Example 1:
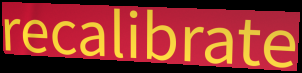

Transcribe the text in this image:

recalibrate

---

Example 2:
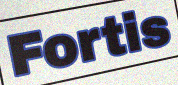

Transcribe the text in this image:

Fortis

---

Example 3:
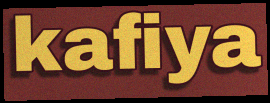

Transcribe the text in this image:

kafiya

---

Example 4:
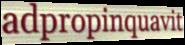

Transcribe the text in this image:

adpropinquavit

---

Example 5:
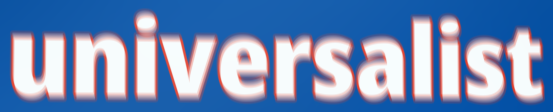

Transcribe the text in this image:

universalist